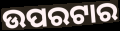
ଉପରଟାର